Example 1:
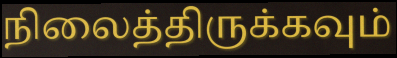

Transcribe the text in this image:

நிலைத்திருக்கவும்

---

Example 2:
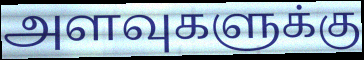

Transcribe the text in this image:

அளவுகளுக்கு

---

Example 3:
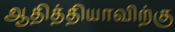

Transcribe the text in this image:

ஆதித்தியாவிற்கு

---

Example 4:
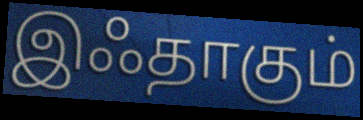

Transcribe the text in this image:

இஃதாகும்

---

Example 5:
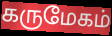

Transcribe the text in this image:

கருமேகம்